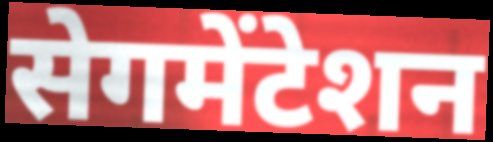
सेगमेंटेशन